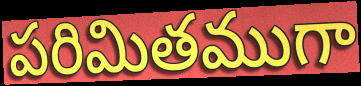
పరిమితముగా